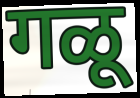
गळू